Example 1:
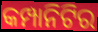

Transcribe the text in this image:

କମ୍ପାନିଟିର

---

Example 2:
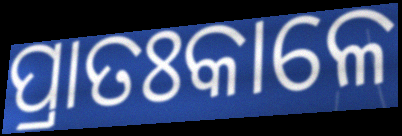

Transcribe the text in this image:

ପ୍ରାତଃକାଳେ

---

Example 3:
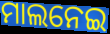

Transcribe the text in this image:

ମାଲନେଇ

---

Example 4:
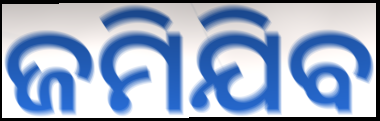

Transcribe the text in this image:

ଜମିଯିବ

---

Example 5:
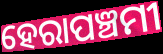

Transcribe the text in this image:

ହେରାପଞ୍ଚମୀ